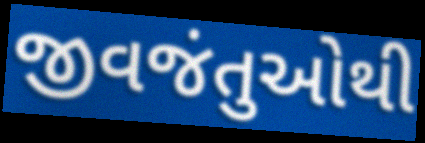
જીવજંતુઓથી